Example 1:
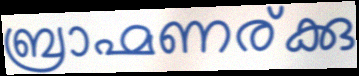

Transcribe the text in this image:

ബ്രാഹ്മണര്ക്കു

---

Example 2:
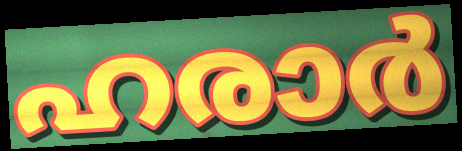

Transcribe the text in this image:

ഹരാർ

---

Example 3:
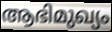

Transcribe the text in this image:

ആഭിമുഖ്യം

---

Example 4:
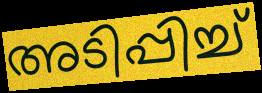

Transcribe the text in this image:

അടിപ്പിച്ച്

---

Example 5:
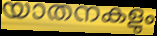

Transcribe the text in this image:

യാതനകളും